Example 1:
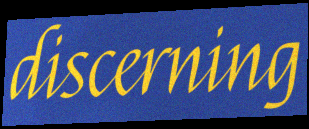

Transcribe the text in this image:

discerning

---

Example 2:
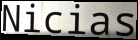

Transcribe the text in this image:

Nicias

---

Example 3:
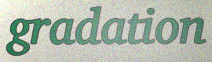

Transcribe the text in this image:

gradation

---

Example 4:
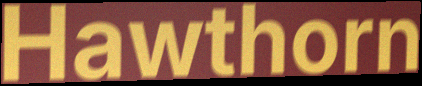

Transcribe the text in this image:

Hawthorn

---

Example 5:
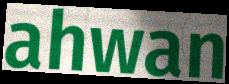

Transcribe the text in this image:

ahwan